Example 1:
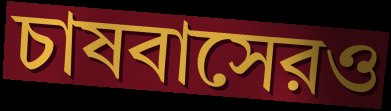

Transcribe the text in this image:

চাষবাসেরও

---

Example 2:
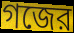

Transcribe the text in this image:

গজের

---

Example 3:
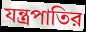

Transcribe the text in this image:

যন্ত্রপাতির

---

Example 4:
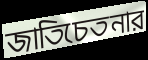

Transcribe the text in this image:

জাতিচেতনার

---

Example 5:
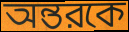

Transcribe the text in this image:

অন্তরকে